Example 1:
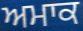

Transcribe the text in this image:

ਅਮਾਕ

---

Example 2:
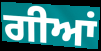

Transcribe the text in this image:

ਗੀਆਂ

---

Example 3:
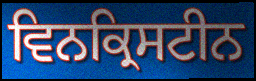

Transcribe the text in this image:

ਵਿਨਕ੍ਰਿਸਟੀਨ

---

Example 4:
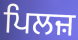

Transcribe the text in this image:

ਪਿਲਜ਼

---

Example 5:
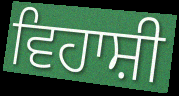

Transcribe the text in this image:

ਵਿਹਾਸ਼ੀ